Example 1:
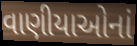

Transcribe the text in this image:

વાણીયાઓનાં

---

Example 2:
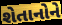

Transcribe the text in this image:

શેતાનોને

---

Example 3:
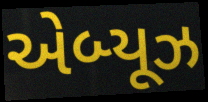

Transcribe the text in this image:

એબ્યૂઝ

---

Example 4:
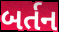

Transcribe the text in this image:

બર્તન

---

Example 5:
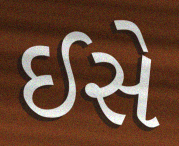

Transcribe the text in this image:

ઈસે